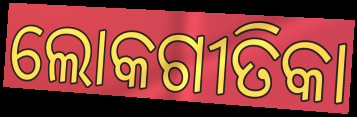
ଲୋକଗୀତିକା